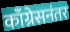
काँग्रेसनंतर